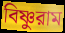
বিষ্ণুরাম